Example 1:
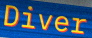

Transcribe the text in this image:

Diver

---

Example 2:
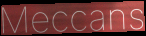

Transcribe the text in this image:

Meccans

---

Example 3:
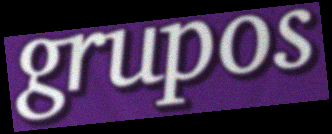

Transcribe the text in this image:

grupos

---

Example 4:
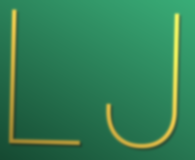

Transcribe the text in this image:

LJ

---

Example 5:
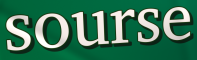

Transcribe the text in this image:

sourse